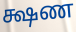
க்ஷண